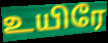
உயிரே